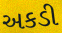
અકડી